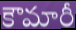
కౌమారీ